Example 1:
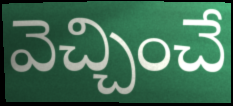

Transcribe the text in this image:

వెచ్చించే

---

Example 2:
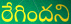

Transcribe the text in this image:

రేగిందని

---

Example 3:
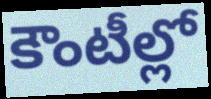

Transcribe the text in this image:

కౌంటీల్లో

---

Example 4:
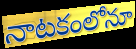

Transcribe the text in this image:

నాటకంలోనూ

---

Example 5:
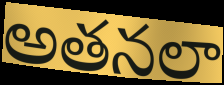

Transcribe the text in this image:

అతనలా